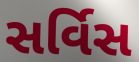
સર્વિસ